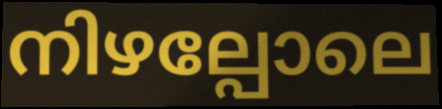
നിഴല്പോലെ